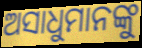
ଅସାଧୁମାନଙ୍କୁ